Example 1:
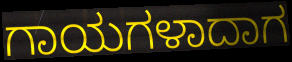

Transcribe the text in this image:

ಗಾಯಗಳಾದಾಗ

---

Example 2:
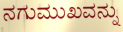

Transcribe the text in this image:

ನಗುಮುಖವನ್ನು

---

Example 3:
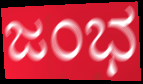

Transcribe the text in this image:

ಜಂಭ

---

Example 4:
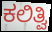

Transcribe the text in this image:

ಕಲಿತ್ವಿ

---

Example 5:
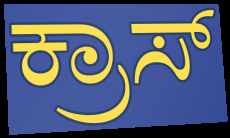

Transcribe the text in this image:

ಕ್ರಾಸ್